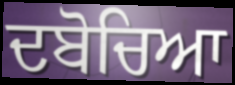
ਦਬੋਚਿਆ